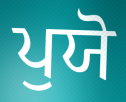
ਪੁਯੋ